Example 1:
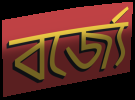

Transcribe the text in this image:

বর্জ্যে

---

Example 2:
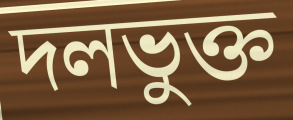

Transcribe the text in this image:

দলভুক্ত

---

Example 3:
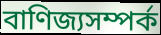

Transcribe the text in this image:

বাণিজ্যসম্পর্ক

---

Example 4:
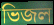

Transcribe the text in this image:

ভিজল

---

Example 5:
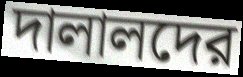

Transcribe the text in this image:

দালালদের